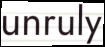
unruly